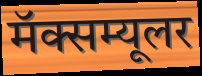
मॅक्सम्यूलर